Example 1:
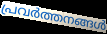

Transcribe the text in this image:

പ്രവർത്തനങ്ങൾ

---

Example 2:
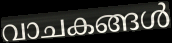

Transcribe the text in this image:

വാചകങ്ങൾ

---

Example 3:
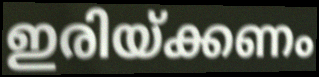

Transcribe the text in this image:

ഇരിയ്ക്കണം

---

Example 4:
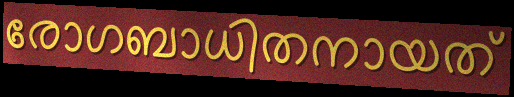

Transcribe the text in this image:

രോഗബാധിതനായത്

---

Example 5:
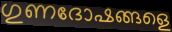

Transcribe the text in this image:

ഗുണദോഷങ്ങളെ